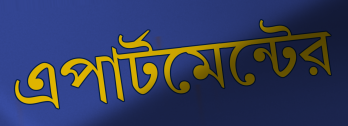
এপার্টমেন্টের